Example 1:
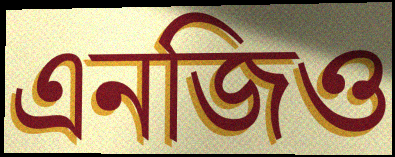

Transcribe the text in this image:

এনজিও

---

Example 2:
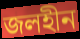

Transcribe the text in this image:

জলহীন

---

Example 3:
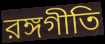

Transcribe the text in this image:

রঙ্গগীতি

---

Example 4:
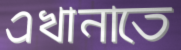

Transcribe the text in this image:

এখানাতে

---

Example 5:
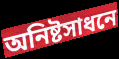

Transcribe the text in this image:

অনিষ্টসাধনে